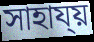
সাহায্য়